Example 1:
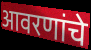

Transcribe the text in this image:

आवरणांचे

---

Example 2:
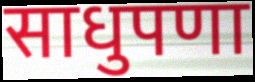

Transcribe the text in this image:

साधुपणा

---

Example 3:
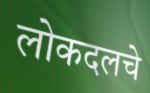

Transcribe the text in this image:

लोकदलचे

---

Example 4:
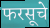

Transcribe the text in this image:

फरसूचे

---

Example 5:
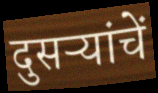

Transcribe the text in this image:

दुसऱ्यांचें